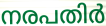
നരപതിർ